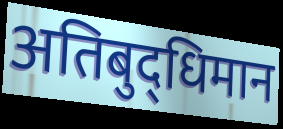
अतिबुद्धिमान